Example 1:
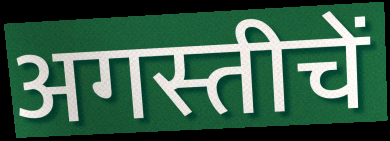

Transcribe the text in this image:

अगस्तीचें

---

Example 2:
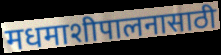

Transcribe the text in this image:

मधमाशीपालनासाठी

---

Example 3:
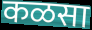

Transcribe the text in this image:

कळसा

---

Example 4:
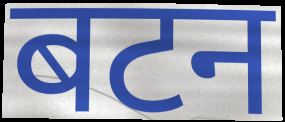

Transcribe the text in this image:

बटन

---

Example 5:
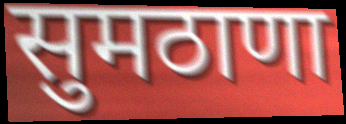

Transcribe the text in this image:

सुमठाणा